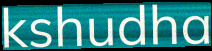
kshudha